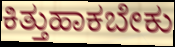
ಕಿತ್ತುಹಾಕಬೇಕು